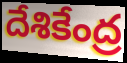
దేశికేంద్ర